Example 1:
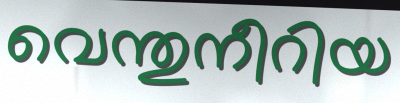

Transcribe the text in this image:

വെന്തുനീറിയ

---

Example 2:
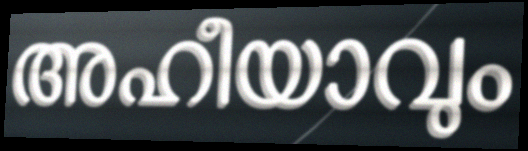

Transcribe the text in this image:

അഹീയാവും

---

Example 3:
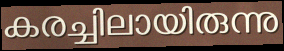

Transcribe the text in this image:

കരച്ചിലായിരുന്നു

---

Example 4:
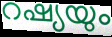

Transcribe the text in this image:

റഷ്യയും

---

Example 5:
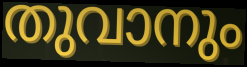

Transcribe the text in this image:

തുവാനും